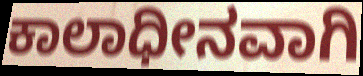
ಕಾಲಾಧೀನವಾಗಿ